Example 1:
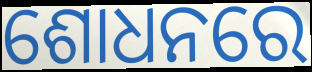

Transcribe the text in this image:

ଶୋଧନରେ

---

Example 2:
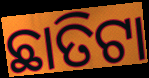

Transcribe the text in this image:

ଛାତିଟା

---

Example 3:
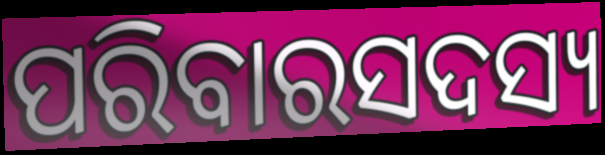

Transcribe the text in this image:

ପରିବାରସଦସ୍ୟ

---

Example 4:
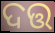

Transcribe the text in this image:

ଦତ୍ତ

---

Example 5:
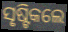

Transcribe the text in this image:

ସୃଷ୍ଟିକଲେ